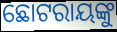
ଛୋଟରାୟଙ୍କୁ